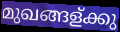
മുഖങ്ങള്ക്കു